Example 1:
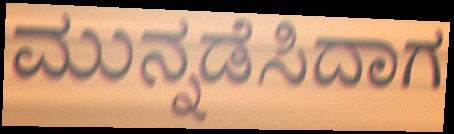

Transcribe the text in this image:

ಮುನ್ನಡೆಸಿದಾಗ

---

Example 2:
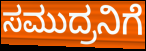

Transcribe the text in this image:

ಸಮುದ್ರನಿಗೆ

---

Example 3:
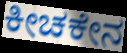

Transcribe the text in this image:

ಕೀಚಕೇನ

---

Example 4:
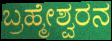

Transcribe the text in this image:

ಬ್ರಹ್ಮೇಶ್ವರನ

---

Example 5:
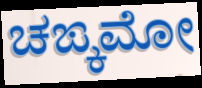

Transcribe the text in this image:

ಚಙ್ಕಮೋ